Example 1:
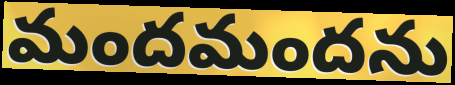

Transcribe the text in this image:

మందమందను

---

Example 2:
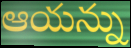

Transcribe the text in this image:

ఆయన్ను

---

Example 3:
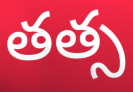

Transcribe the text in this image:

తత్స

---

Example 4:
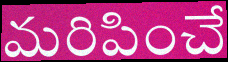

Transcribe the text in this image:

మరిపించే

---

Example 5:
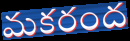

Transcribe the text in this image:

మకరంద